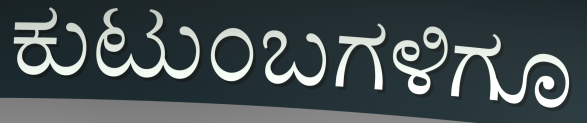
ಕುಟುಂಬಗಳಿಗೂ